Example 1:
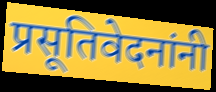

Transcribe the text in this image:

प्रसूतिवेदनांनी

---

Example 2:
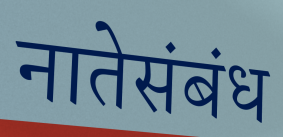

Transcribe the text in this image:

नातेसंबंध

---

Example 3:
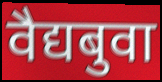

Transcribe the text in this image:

वैद्यबुवा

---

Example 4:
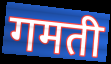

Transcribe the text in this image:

गमती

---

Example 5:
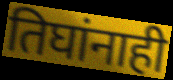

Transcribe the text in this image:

तिघांनाही